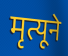
मृत्यूने